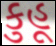
કુહૂ